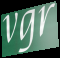
vgr